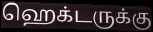
ஹெக்டருக்கு